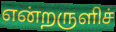
என்றருளிச்